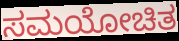
ಸಮಯೋಚಿತ